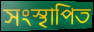
সংস্থাপিত